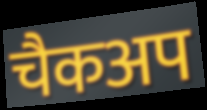
चैकअप